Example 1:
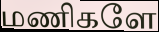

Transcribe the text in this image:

மணிகளே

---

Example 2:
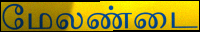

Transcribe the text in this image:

மேலண்டை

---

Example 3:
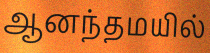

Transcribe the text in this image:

ஆனந்தமயில்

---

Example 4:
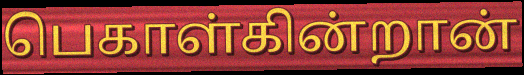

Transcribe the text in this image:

பெகாள்கின்றான்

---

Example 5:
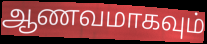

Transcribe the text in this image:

ஆணவமாகவும்